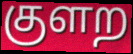
குளற